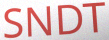
SNDT